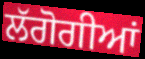
ਲੱਗੋਗੀਆਂ